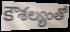
కౌశల్యంతో